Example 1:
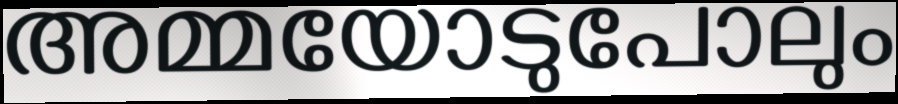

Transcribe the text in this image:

അമ്മയോടുപോലും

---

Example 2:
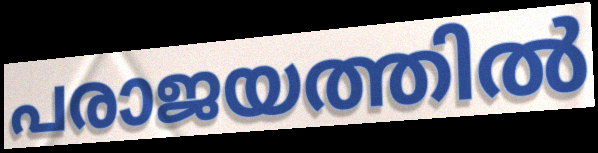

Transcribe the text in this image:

പരാജയത്തിൽ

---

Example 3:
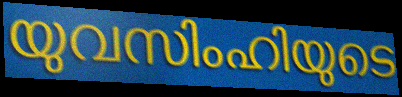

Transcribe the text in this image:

യുവസിംഹിയുടെ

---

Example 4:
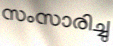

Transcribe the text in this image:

സംസാരിച്ചു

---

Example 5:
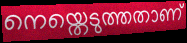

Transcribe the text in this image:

നെയ്തെടുത്തതാണ്